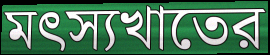
মৎস্যখাতের